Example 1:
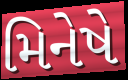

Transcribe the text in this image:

મિનેષે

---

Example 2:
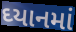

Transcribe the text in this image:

ઘ્યાનમાં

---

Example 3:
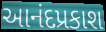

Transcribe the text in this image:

આનંદપ્રકાશ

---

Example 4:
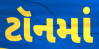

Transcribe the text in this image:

ટૉનમાં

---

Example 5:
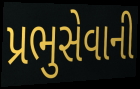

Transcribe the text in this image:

પ્રભુસેવાની